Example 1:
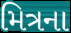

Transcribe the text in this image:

મિત્રના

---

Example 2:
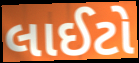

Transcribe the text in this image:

લાઈટો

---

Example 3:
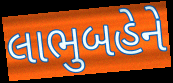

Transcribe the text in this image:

લાભુબહેને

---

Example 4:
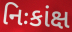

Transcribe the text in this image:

નિઃકાંક્ષ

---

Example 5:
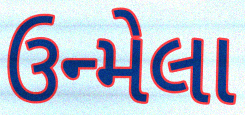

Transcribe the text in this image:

ઉન્મેલા